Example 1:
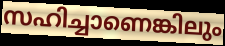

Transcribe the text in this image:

സഹിച്ചാണെങ്കിലും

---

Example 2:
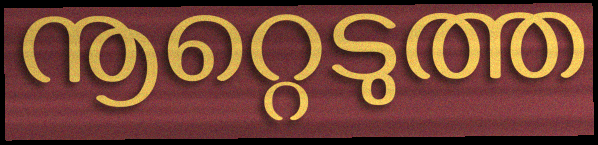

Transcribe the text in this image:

നൂറ്റെടുത്ത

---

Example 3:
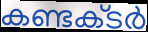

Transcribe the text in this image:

കണ്ടക്‌ടർ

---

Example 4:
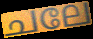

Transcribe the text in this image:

ചലേ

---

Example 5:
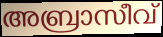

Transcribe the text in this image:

അബ്രാസീവ്